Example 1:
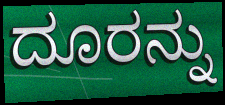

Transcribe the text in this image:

ದೂರನ್ನು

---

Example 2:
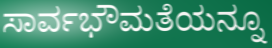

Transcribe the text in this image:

ಸಾರ್ವಭೌಮತೆಯನ್ನೂ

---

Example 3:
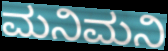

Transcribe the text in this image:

ಮನಿಮನಿ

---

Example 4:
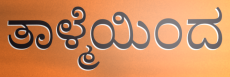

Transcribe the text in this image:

ತಾಳ್ಮೆಯಿಂದ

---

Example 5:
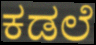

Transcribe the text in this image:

ಕಡಲೆ